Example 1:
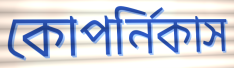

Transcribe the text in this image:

কোপর্নিকাস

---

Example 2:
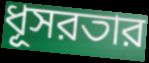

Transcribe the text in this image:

ধূসরতার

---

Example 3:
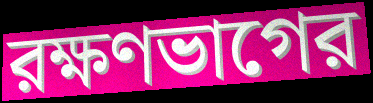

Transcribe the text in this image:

রক্ষণভাগের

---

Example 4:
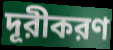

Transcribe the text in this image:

দূরীকরণ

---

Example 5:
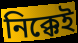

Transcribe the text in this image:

নিক্কেই